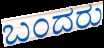
ಬಂದರು